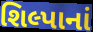
શિલ્પાનાં